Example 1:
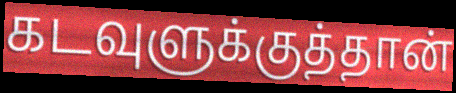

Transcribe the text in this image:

கடவுளுக்குத்தான்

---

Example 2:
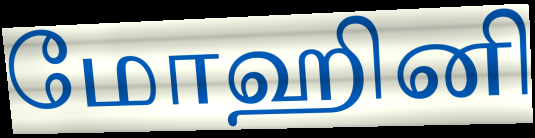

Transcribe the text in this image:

மோஹினி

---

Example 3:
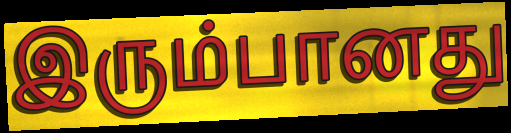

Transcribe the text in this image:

இரும்பானது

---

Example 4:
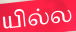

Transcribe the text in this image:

யில்ல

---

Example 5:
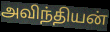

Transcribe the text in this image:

அவிந்தியன்